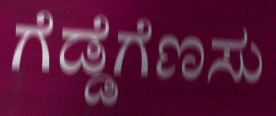
ಗೆಡ್ಡೆಗೆಣಸು